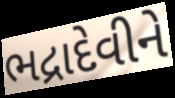
ભદ્રાદેવીને